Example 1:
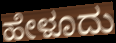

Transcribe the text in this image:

ಹೇಳೂದು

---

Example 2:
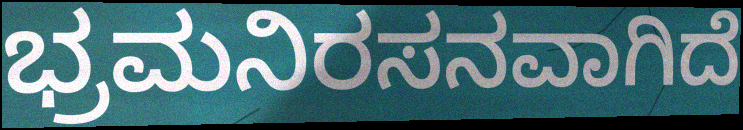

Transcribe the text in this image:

ಭ್ರಮನಿರಸನವಾಗಿದೆ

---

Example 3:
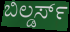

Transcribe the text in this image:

ಬಿಲ್ಡರ್ಸ್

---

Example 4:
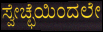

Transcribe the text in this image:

ಸ್ವೇಚ್ಛೆಯಿಂದಲೇ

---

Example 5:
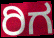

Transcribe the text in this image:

ರಿಗ